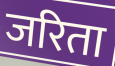
जरिता